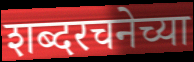
शब्दरचनेच्या